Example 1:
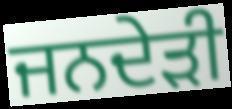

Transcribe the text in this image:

ਜਨਦੇੜੀ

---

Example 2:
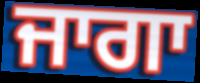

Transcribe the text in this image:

ਜਾਗਾ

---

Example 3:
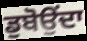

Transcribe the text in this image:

ਡੁਬੋਉਂਦਾ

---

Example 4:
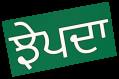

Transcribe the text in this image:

ਝੇਪਦਾ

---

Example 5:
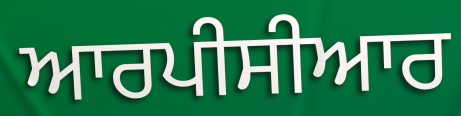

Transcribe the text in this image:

ਆਰਪੀਸੀਆਰ